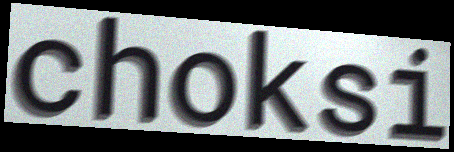
choksi